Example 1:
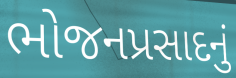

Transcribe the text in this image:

ભોજનપ્રસાદનું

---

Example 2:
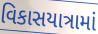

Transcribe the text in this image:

વિકાસયાત્રામાં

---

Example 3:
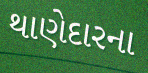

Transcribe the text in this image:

થાણેદારના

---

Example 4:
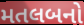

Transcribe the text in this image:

મતલબનો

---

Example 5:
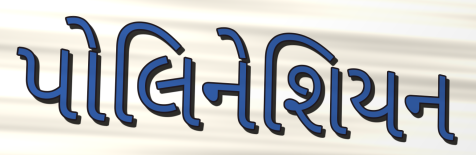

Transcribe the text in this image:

પોલિનેશિયન